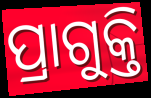
ପ୍ରାଗୁକ୍ତି